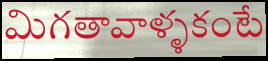
మిగతావాళ్ళకంటే